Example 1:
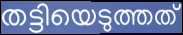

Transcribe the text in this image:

തട്ടിയെടുത്തത്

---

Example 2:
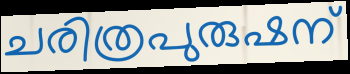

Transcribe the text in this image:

ചരിത്രപുരുഷന്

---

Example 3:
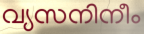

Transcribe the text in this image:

വ്യസനിനീം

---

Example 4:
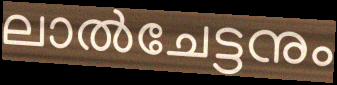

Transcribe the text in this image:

ലാൽചേട്ടനും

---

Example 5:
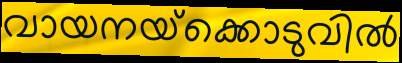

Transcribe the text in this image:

വായനയ്‌ക്കൊടുവിൽ